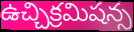
ఉచ్చిక్రమిషన్స